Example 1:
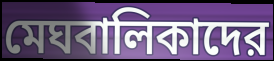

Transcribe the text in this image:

মেঘবালিকাদের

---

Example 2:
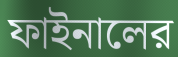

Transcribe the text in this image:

ফাইনালের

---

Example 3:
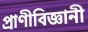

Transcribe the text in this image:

প্রাণীবিজ্ঞানী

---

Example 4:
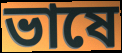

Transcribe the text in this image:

ভাষে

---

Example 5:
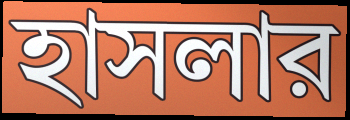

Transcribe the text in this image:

হাসলার